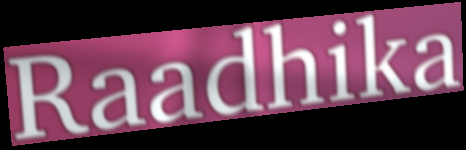
Raadhika